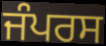
ਜੰਪਰਸ